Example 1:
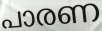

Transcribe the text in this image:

പാരണ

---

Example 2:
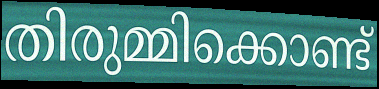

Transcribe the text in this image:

തിരുമ്മിക്കൊണ്ട്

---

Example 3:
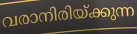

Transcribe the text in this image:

വരാനിരിയ്ക്കുന്ന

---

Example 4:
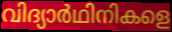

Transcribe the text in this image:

വിദ്യാർഥിനികളെ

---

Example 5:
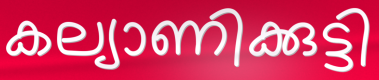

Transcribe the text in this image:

കല്യാണിക്കുട്ടി